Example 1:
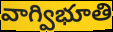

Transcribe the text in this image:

వాగ్విభూతి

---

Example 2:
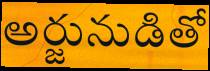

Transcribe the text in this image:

అర్జునుడితో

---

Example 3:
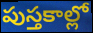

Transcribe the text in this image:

పుస్తకాల్లో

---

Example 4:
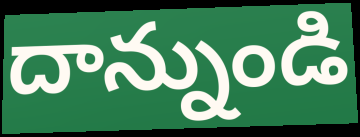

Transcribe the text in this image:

దాన్నుండి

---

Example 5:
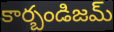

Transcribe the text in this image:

కార్బండిజమ్